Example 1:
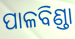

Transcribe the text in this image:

ପାଳବିଣ୍ଡା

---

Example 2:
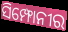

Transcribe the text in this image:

ସିମ୍ଫୋନୀର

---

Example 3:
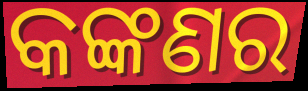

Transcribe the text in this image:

କଙ୍କଣର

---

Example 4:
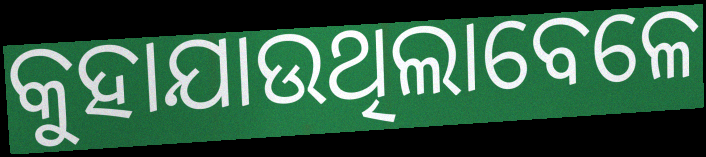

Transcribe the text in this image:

କୁହାଯାଉଥିଲାବେଳେ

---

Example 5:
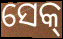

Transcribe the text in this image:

ସେକ୍